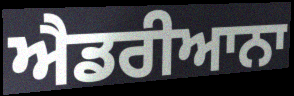
ਐਡਰੀਆਨਾ